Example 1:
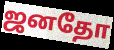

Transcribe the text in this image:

ஜனதோ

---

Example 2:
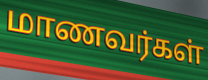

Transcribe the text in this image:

மாணவர்கள்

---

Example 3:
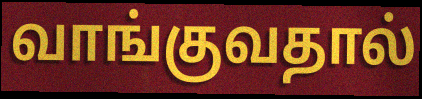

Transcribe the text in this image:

வாங்குவதால்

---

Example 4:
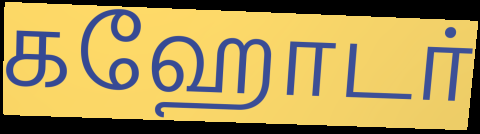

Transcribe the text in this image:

கஹோடர்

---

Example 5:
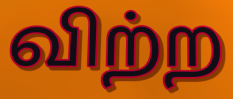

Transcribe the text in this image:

விற்ற